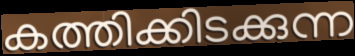
കത്തിക്കിടക്കുന്ന